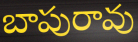
బాపురావు